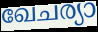
ഖേചര്യാ